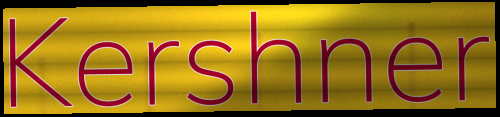
Kershner